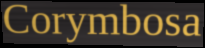
Corymbosa